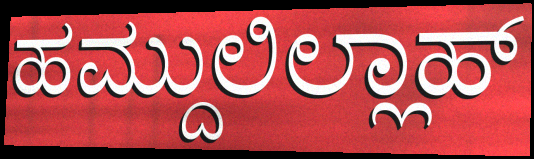
ಹಮ್ದುಲಿಲ್ಲಾಹ್